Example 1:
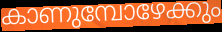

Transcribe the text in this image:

കാണുമ്പോഴേക്കും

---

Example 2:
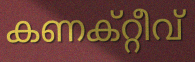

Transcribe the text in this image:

കണക്റ്റീവ്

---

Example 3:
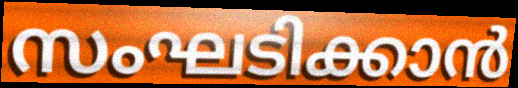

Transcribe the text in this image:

സംഘടിക്കാൻ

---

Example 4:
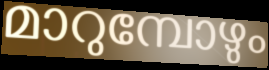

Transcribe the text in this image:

മാറുമ്പോഴും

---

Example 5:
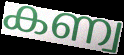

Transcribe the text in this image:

കണ്വ